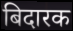
बिदारक